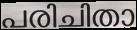
പരിചിതാ